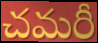
చమరీ